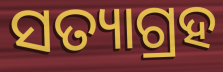
ସତ୍ୟାଗ୍ରହ